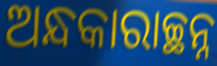
ଅନ୍ଧକାରାଚ୍ଛନ୍ନ